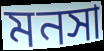
মনসা